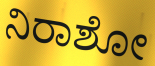
ನಿರಾಶೋ